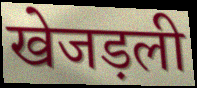
खेजड़ली